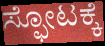
ಸ್ಫೋಟಕ್ಕೆ